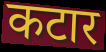
कटार